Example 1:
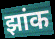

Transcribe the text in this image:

झांक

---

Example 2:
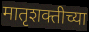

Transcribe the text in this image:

मातृशक्तीच्या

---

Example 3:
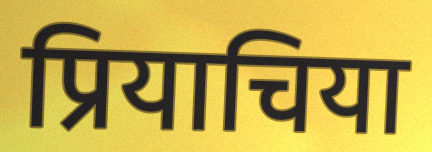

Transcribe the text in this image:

प्रियाचिया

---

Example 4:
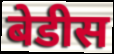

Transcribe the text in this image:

बेडीस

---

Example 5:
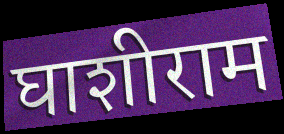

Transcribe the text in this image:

घाशीराम